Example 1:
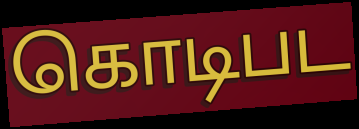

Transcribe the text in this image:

கொடிபட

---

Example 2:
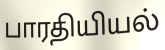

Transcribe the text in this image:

பாரதியியல்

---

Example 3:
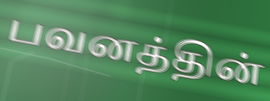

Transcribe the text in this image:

பவனத்தின்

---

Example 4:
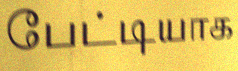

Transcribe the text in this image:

பேட்டியாக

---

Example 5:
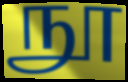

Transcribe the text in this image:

நூ